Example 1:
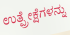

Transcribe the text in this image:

ಉತ್ಪ್ರೇಕ್ಷೆಗಳನ್ನು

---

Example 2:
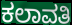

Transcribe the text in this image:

ಕಲಾವತಿ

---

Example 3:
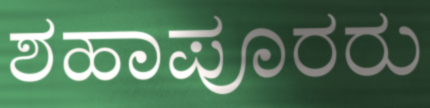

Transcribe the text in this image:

ಶಹಾಪೂರರು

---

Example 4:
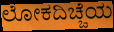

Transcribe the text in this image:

ಲೋಕದಿಚ್ಚೆಯ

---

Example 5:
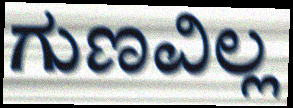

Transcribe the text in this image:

ಗುಣವಿಲ್ಲ